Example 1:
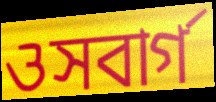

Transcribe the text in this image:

ওসবার্গ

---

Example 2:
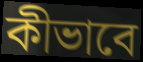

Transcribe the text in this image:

কীভাবে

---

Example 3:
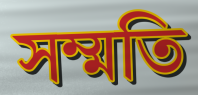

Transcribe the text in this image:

সম্মতি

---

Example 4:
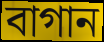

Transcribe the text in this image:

বাগান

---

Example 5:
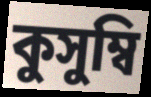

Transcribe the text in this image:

কুসুম্বি